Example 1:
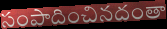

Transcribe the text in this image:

సంపాదించినదంతా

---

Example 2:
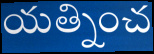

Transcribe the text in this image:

యత్నించ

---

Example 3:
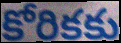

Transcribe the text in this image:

కోరికకు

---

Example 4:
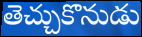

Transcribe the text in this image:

తెచ్చుకొనుడు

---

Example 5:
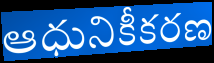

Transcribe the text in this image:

ఆధునికీకరణ